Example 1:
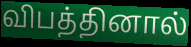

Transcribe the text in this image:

விபத்தினால்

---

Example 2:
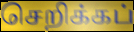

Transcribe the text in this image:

செறிக்கப்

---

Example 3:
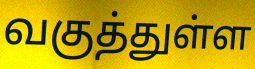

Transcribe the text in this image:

வகுத்துள்ள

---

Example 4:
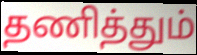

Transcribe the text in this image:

தணித்தும்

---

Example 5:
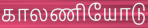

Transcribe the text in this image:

காலணியோடு